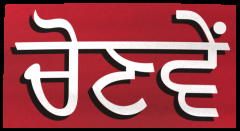
ਚੋਣਵੇਂ